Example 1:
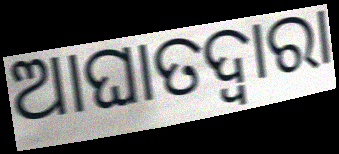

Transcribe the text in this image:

ଆଘାତଦ୍ୱାରା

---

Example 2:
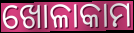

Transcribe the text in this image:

ଖୋଳାକାମ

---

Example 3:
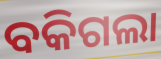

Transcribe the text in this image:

ବକିଗଲା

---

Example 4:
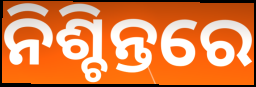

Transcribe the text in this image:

ନିଶ୍ଚିନ୍ତରେ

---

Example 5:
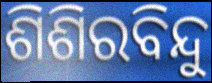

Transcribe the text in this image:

ଶିଶିରବିନ୍ଦୁ